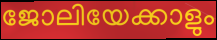
ജോലിയേക്കാളും